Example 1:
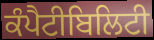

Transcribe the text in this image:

ਕੰਪੈਟੀਬਿਲਿਟੀ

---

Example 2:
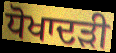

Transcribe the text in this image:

ਧੋਖਾਦੜੀ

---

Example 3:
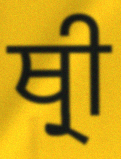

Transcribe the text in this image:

ਥ੍ਰੀ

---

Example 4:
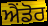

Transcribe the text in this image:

ਐਂਡੋਰ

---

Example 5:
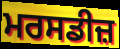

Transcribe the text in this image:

ਮਰਸਡੀਜ਼